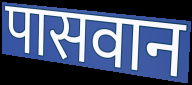
पासवान